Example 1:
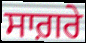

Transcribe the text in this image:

ਸਾਗ਼ਰੇ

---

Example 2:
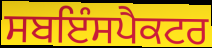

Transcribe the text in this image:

ਸਬਇੰਸਪੈਕਟਰ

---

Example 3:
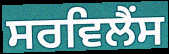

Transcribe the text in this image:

ਸਰਵਿਲੈਂਸ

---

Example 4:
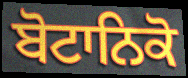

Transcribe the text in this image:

ਬੋਟਾਨਿਕੋ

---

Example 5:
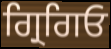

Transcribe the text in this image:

ਗ੍ਰਿਗਿਓ